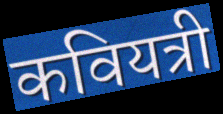
कवियत्री